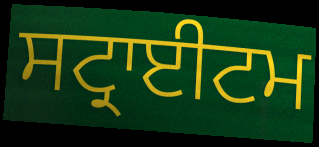
ਸਟ੍ਰਾਈਟਮ